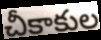
చీకాకుల